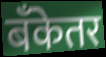
बँकेतर